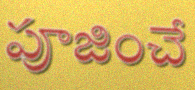
పూజించే